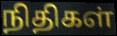
நிதிகள்